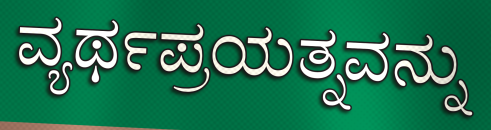
ವ್ಯರ್ಥಪ್ರಯತ್ನವನ್ನು